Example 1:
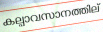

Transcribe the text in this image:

കല്പാവസാനത്തില്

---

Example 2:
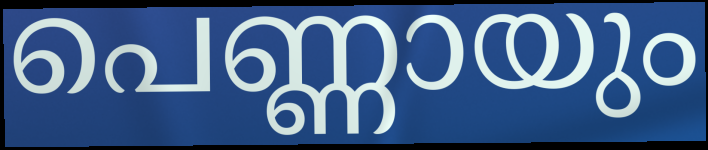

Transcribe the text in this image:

പെണ്ണായും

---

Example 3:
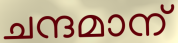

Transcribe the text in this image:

ചന്ദമാന്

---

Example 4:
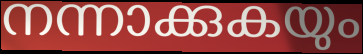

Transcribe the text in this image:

നന്നാക്കുകയും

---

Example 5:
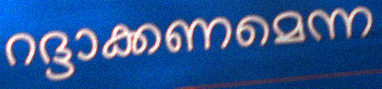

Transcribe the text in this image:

റദ്ദാക്കണമെന്ന